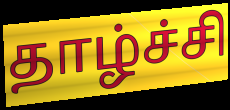
தாழ்ச்சி